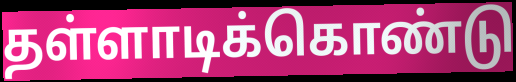
தள்ளாடிக்கொண்டு